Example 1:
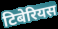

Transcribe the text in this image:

टिबेरियस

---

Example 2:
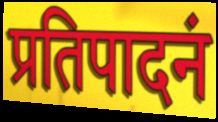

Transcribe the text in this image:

प्रतिपादनं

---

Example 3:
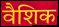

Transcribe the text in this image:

वैशिक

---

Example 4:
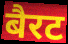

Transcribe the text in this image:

बैरट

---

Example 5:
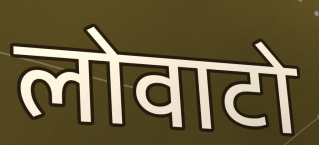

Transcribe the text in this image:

लोवाटो